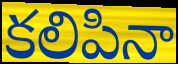
కలిపినా